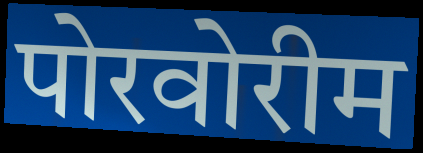
पोरवोरीम